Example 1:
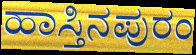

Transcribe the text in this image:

ಹಾಸ್ತಿನಪುರಂ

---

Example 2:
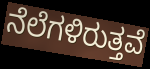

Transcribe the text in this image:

ನೆಲೆಗಳಿರುತ್ತವೆ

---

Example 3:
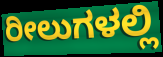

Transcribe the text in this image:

ರೀಲುಗಳಲ್ಲಿ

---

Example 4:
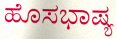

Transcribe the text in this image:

ಹೊಸಭಾಷ್ಯ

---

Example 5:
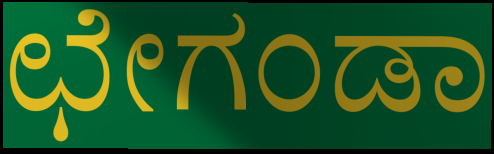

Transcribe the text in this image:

ಛೇಗಂಡಾ